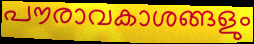
പൗരാവകാശങ്ങളും